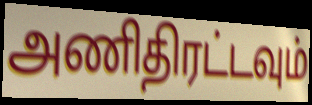
அணிதிரட்டவும்